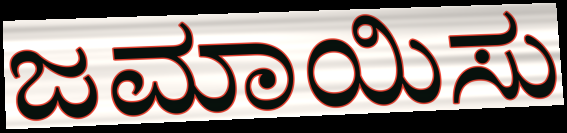
ಜಮಾಯಿಸು